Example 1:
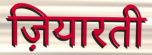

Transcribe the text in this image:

ज़ियारती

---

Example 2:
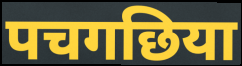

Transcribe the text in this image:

पचगछिया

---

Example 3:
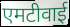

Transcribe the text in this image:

एमटीवाई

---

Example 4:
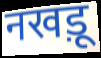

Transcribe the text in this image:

नखड़ू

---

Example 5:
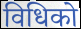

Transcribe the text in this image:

विधिको